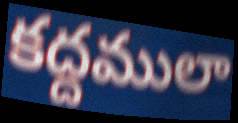
కద్దములా